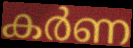
കർണ